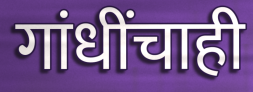
गांधींचाही